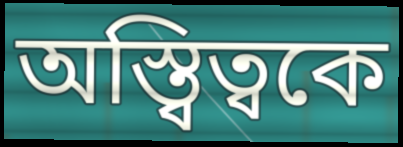
অস্ত্বিত্বকে